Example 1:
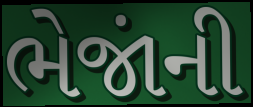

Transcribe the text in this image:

ભેજાંની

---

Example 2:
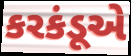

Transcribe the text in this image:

કરકંડૂએ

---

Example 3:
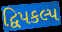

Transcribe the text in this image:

દ્વિપકલ્પ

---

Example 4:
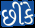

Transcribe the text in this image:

છીંકે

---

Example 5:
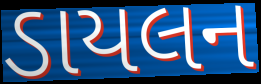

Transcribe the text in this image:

ડાયલન